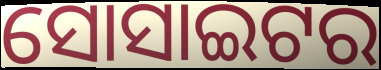
ସୋସାଇଟର